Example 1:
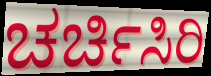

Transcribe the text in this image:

ಚರ್ಚಿಸಿರಿ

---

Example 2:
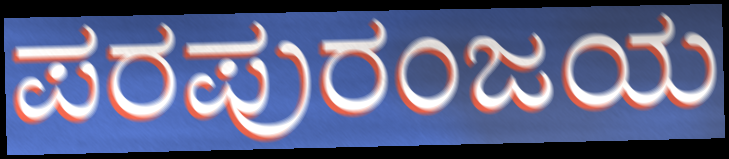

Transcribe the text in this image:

ಪರಪುರಂಜಯ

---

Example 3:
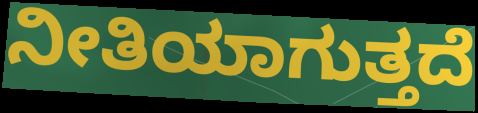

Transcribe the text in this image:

ನೀತಿಯಾಗುತ್ತದೆ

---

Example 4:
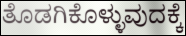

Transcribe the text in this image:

ತೊಡಗಿಕೊಳ್ಳುವುದಕ್ಕೆ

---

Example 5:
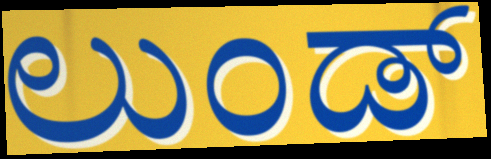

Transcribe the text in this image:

ಲುಂಡ್